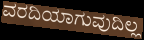
ವರದಿಯಾಗುವುದಿಲ್ಲ